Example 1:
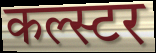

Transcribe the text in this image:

कल्स्टर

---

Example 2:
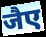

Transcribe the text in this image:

जैए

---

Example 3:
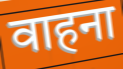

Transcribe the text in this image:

वाहना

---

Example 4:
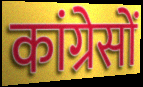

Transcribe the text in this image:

कांग्रेसों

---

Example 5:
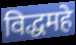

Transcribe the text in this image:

विद्धमहे